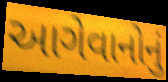
આગેવાનોનું